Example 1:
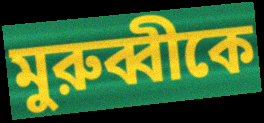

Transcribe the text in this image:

মুরুব্বীকে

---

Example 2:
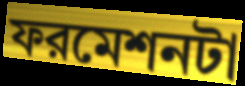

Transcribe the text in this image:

ফরমেশনটা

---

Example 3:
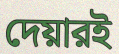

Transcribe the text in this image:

দেয়ারই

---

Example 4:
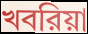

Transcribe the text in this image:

খবরিয়া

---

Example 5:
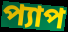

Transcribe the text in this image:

প্যাপ